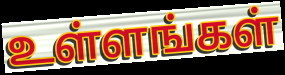
உள்ளங்கள்